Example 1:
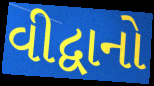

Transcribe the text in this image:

વીદ્વાનો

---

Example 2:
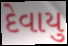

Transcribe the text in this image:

દેવાયુ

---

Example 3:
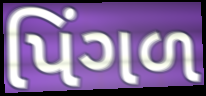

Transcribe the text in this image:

પિંગળ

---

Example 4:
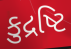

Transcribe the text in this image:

કુદ્રષ્ટિ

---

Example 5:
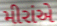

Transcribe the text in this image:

મીરાંએ